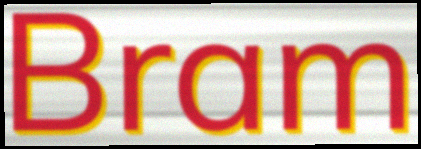
Bram